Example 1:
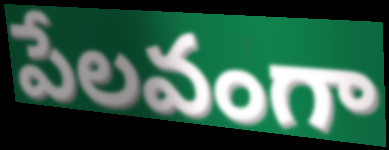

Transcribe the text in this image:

పేలవంగా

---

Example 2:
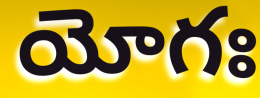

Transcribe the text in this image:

యోగః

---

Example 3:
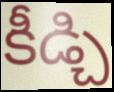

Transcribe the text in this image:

కీడ్చి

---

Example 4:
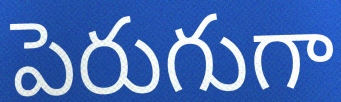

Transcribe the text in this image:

పెరుగుగా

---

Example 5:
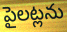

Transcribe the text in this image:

పైలట్లను